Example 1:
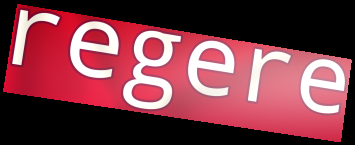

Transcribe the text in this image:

regere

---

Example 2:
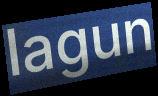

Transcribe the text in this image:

lagun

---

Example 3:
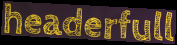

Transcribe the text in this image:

headerfull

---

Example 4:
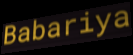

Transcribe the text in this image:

Babariya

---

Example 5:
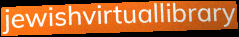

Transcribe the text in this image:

jewishvirtuallibrary